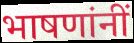
भाषणांनीं